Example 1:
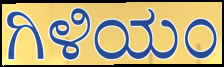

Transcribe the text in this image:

ಗಿಳಿಯಂ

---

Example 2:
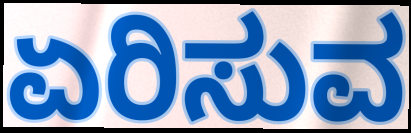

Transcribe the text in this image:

ಏರಿಸುವ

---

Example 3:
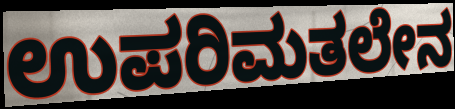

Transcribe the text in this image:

ಉಪರಿಮತಲೇನ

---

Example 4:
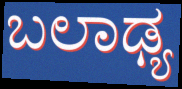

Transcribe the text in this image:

ಬಲಾಢ್ಯ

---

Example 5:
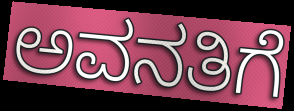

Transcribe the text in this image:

ಅವನತಿಗೆ